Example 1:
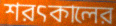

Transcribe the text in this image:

শরৎকালের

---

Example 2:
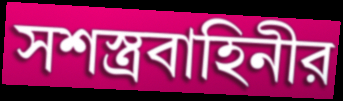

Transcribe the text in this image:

সশস্ত্রবাহিনীর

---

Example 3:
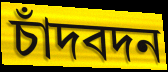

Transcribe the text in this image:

চাঁদবদন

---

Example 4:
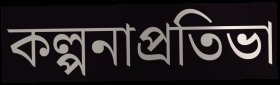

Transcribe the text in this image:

কল্পনাপ্রতিভা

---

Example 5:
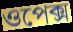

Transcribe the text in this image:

ওপেক্স